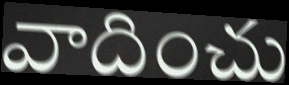
వాదించు